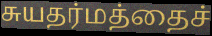
சுயதர்மத்தைச்